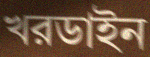
খরডাইন